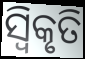
ସ୍ଵିକୃତି